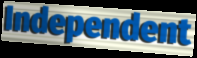
Independent